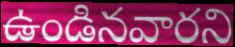
ఉండినవారని